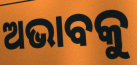
ଅଭାବକୁ